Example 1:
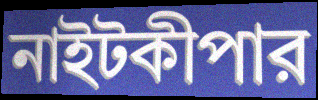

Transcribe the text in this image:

নাইটকীপার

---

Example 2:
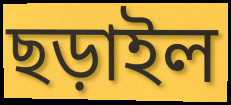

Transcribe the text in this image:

ছড়াইল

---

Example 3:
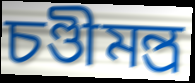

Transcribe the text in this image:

চণ্ডীমন্ত্র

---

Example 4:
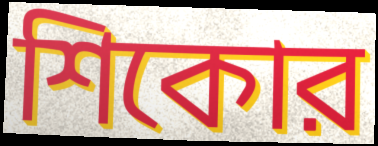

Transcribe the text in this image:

শিকোর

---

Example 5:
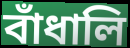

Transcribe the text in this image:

বাঁধালি